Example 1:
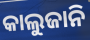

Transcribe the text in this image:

କାଲୁଜାନି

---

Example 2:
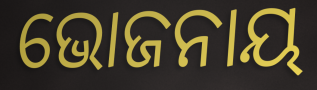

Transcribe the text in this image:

ଭୋଜନାୟ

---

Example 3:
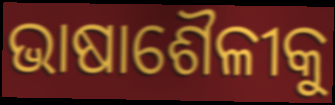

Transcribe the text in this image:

ଭାଷାଶୈଳୀକୁ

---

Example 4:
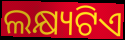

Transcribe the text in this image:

ଲକ୍ଷ୍ୟଟିଏ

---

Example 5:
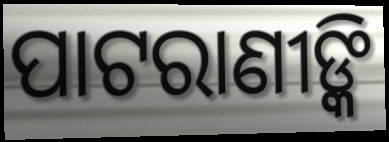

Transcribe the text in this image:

ପାଟରାଣୀଙ୍କି